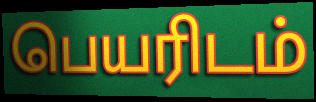
பெயரிடம்